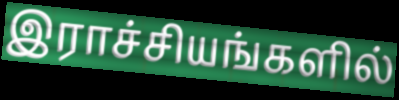
இராச்சியங்களில்